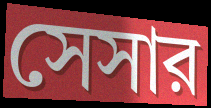
সেসার